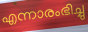
എന്നാരംഭിച്ചു